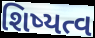
શિષ્યત્વ